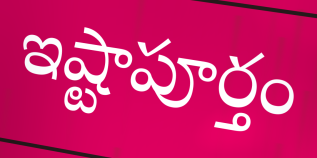
ఇష్టాపూర్తం